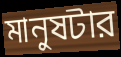
মানুষটার